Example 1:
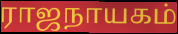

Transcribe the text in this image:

ராஜநாயகம்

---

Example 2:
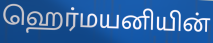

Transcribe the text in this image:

ஹெர்மயனியின்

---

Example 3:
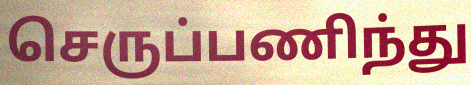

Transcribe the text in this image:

செருப்பணிந்து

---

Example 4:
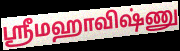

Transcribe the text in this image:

ஸ்ரீமஹாவிஷ்ணு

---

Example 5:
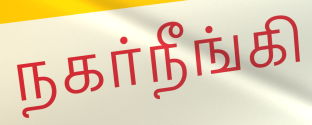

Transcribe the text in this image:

நகர்நீங்கி